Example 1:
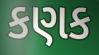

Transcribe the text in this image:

કણક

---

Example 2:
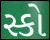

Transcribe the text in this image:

સ્કો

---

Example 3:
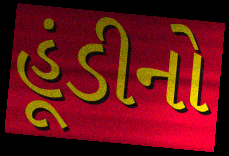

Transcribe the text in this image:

હૂંડીનો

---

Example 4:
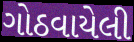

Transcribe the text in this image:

ગોઠવાયેલી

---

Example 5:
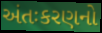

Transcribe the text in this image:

અંતઃકરણનો